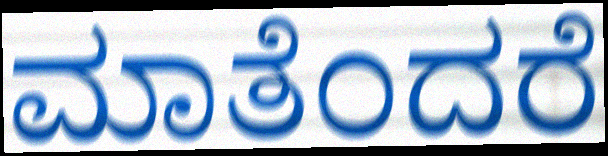
ಮಾತೆಂದರೆ